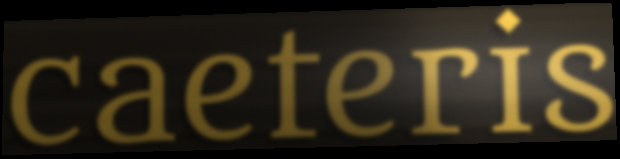
caeteris